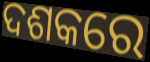
ଦଶକରେ